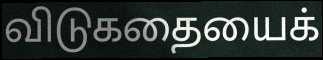
விடுகதையைக்